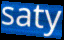
saty